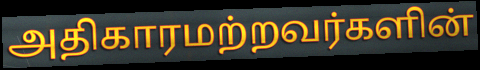
அதிகாரமற்றவர்களின்